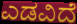
ಎಡವಿದೆ